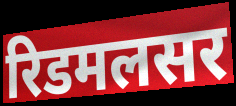
रिडमलसर